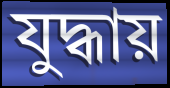
যুদ্ধায়